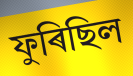
ফুৰিছিল